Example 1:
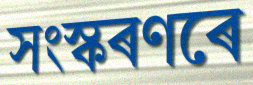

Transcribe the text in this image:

সংস্কৰণৰে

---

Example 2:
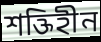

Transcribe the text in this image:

শক্তিহীন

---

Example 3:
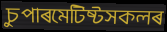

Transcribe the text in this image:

চুপাৰমেটিষ্টসকলৰ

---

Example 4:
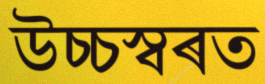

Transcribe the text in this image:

উচ্চস্বৰত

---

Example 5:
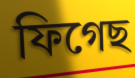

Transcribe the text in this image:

ফিগেছ